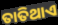
ତାତିଥାଏ